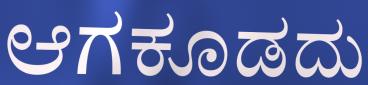
ಆಗಕೂಡದು